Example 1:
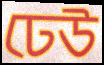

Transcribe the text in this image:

ঢেউ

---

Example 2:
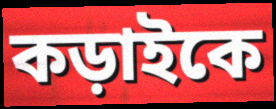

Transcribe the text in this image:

কড়াইকে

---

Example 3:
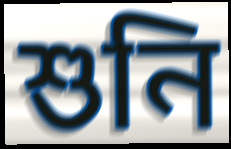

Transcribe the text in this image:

শুনি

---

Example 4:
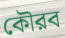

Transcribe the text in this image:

কৌরব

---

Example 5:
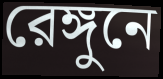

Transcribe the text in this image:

রেঙ্গুনে